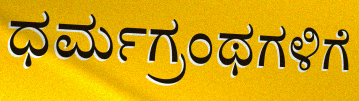
ಧರ್ಮಗ್ರಂಥಗಳಿಗೆ